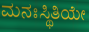
ಮನಃಸ್ಥಿತಿಯೇ